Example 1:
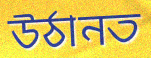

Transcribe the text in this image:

উঠানত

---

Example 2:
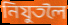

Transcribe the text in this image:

নিযুতলৈ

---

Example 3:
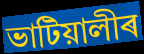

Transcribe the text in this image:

ভাটিয়ালীৰ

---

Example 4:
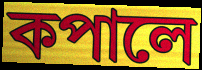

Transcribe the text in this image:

কপালে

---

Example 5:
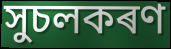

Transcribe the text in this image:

সুচলকৰণ